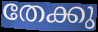
തേക്കു